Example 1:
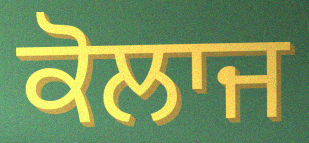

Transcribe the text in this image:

ਕੋਲਾਜ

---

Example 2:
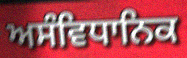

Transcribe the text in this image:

ਅਸੰਵਿਧਾਨਿਕ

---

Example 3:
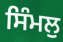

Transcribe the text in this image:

ਸਿੰਮਲੁ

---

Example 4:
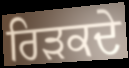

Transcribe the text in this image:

ਰਿੜਕਦੇ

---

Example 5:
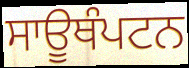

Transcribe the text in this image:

ਸਾਊਥੰਪਟਨ